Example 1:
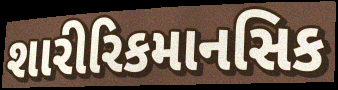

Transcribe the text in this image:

શારીરિકમાનસિક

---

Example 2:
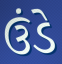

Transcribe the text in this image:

ઉંડે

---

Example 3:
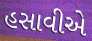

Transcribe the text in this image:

હસાવીએ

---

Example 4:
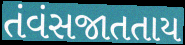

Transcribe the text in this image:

તંવંસજાતતાય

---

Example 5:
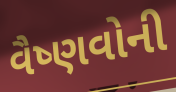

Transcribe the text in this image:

વૈષ્ણવોની